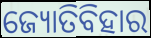
ଜ୍ୟୋତିବିହାର